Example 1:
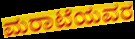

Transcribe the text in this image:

ಮರಾಟೆಯವರ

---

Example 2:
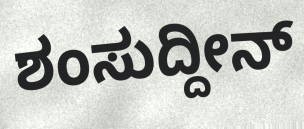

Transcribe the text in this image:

ಶಂಸುದ್ದೀನ್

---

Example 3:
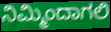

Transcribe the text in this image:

ನಿಮ್ಮಿಂದಾಗಲಿ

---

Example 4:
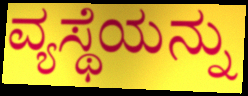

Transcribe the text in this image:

ವ್ಯಸ್ಥೆಯನ್ನು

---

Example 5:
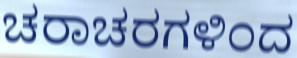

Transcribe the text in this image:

ಚರಾಚರಗಳಿಂದ